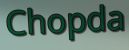
Chopda